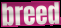
breed